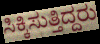
ಸಿಕ್ಕಿಸುತ್ತಿದ್ದರು